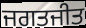
ਜਗਤਜੀਤ